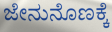
ಜೇನುನೊಣಕ್ಕೆ